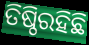
ତିଷ୍ଠିରହିଛି